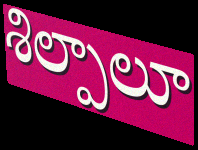
శిల్పాలూ